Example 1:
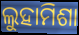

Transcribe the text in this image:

ଲୁହାମିଶା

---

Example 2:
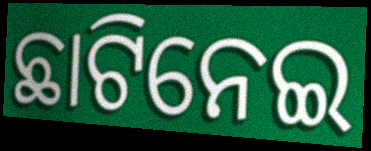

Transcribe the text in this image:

ଛାଟିନେଇ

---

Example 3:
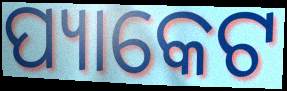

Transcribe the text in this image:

ପ୍ଯାକେଟ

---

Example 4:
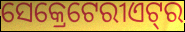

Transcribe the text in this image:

ସେକ୍ରେଟେରୀଏଟ୍‍ର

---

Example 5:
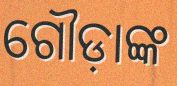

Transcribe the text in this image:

ଗୌଡ଼ାଙ୍କ